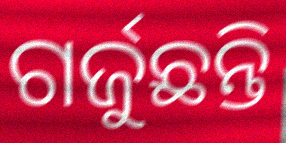
ଗର୍ଜୁଛନ୍ତି